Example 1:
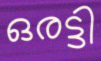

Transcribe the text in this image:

ഒരട്ടി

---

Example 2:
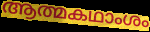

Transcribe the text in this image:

ആത്മകഥാംശം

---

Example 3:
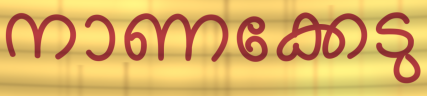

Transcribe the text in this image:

നാണക്കേടു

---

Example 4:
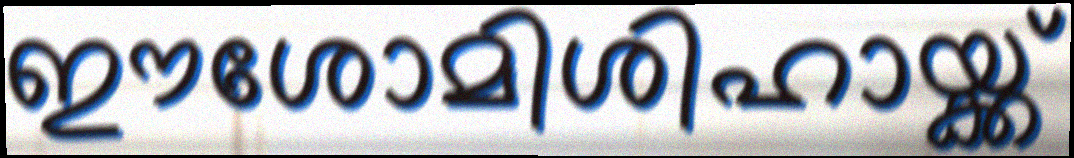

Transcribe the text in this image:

ഈശോമിശിഹായ്ക്ക്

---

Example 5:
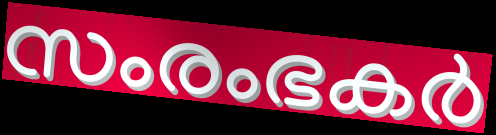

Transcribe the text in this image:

സംരംഭകർ